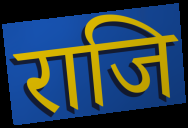
राजि